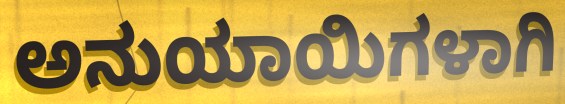
ಅನುಯಾಯಿಗಳಾಗಿ